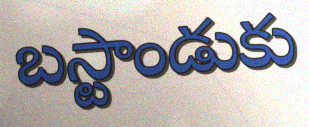
బస్టాండుకు